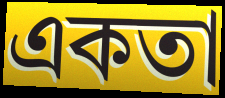
একতা